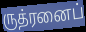
ருத்ரனைப்